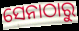
ସେନାଠାରୁ